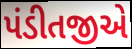
પંડીતજીએ